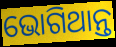
ଭୋଗିଥାନ୍ତ